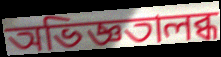
অভিজ্ঞতালব্ধ